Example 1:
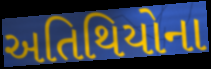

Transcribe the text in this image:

અતિથિયોના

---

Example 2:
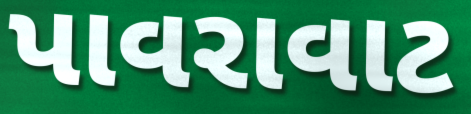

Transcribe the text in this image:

પાવરાવાટ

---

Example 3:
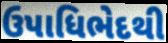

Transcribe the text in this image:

ઉપાધિભેદથી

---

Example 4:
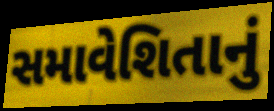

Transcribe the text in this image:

સમાવેશિતાનું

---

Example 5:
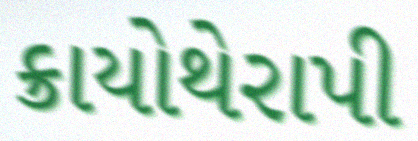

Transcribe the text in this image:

ક્રાયોથેરાપી